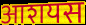
आशयस